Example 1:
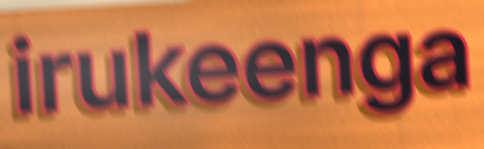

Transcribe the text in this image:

irukeenga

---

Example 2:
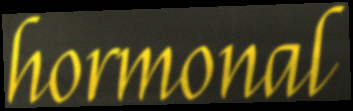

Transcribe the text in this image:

hormonal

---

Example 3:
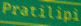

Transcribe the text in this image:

Pratilipi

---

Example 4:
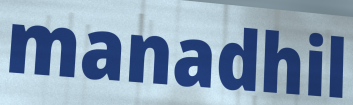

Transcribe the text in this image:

manadhil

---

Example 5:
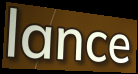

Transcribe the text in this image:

lance